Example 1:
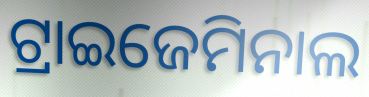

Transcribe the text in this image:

ଟ୍ରାଇଜେମିନାଲ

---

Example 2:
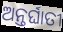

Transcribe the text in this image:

ଅନ୍ତର୍ଘାତୀ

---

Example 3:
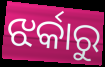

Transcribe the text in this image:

ଝର୍କାରୁ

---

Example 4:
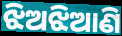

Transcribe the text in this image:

ଝିଅଝିଆଣି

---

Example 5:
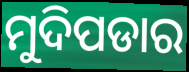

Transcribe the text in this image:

ମୁଦିପଡାର